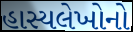
હાસ્યલેખોનો